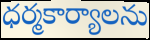
ధర్మకార్యాలను